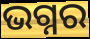
ଭଗ୍ନର